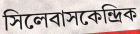
সিলেবাসকেন্দ্রিক